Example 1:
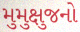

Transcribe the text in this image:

મુમુક્ષુજનો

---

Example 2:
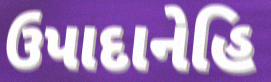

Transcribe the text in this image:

ઉપાદાનેહિ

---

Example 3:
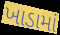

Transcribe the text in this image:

ખાડામાં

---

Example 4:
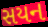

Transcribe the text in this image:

સયન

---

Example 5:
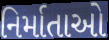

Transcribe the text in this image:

નિર્માતાઓ